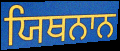
ਯਿਥਨਾਨ